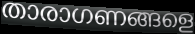
താരാഗണങ്ങളെ